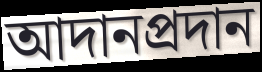
আদানপ্রদান